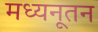
मध्यनूतन